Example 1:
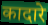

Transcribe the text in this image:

कादारे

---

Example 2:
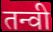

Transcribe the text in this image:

तन्वी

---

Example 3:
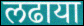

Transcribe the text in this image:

लढाया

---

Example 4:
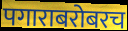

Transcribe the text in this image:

पगाराबरोबरच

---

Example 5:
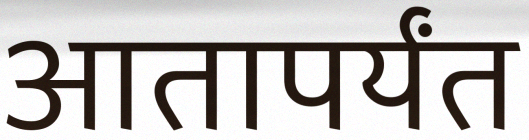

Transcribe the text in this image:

आतापर्यंत